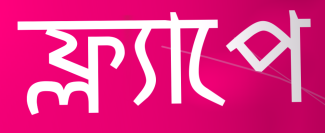
ফ্ল্যাপে